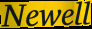
Newell